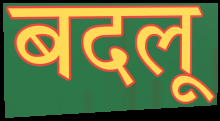
बदलू